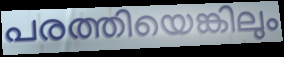
പരത്തിയെങ്കിലും